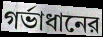
গর্ভাধানের